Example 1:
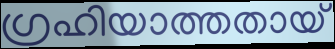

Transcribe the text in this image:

ഗ്രഹിയാത്തതായ്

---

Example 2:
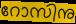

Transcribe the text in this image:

റോസിനു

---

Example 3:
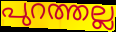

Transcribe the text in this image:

പുറത്തല്ല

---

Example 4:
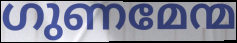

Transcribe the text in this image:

ഗുണമേന്മ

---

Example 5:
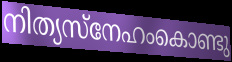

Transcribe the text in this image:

നിത്യസ്നേഹംകൊണ്ടു